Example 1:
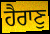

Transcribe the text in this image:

ਹੈਰਾਣੁ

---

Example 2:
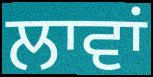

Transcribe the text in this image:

ਲਾਵਾਂ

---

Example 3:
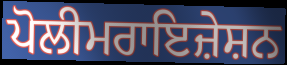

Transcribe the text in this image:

ਪੋਲੀਮਰਾਇਜ਼ੇਸ਼ਨ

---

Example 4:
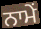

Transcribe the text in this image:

ਨਾਮੇਂ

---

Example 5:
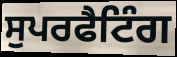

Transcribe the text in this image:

ਸੁਪਰਫੈਟਿੰਗ